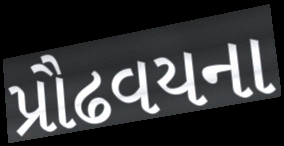
પ્રૌઢવયના